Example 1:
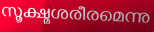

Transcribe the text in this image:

സൂക്ഷ്മശരീരമെന്നു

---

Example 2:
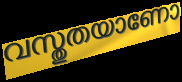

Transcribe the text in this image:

വസ്തുതയാണോ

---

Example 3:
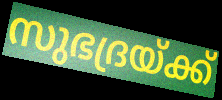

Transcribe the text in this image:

സുഭദ്രയ്ക്ക്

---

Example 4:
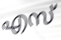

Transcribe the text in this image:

എസ്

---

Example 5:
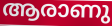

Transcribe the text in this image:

ആരാണു